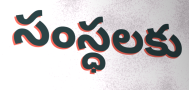
సంస్ధలకు